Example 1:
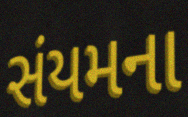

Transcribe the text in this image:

સંયમના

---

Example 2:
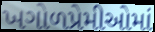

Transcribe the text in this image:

ખગોળપ્રેમીઓમાં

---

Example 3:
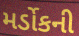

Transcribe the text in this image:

મર્ડોકની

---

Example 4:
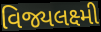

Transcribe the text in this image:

વિજ્યલક્ષ્મી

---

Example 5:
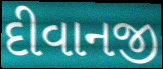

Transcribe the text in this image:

દીવાનજી